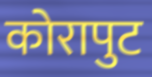
कोरापुट